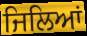
ਜਿਲਿਆਂ